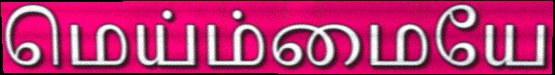
மெய்ம்மையே